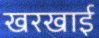
खरखाई